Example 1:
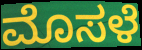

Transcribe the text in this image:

ಮೊಸಳೆ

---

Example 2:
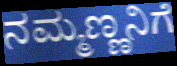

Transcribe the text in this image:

ನಮ್ಮಣ್ಣನಿಗೆ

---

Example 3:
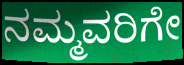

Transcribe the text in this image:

ನಮ್ಮವರಿಗೇ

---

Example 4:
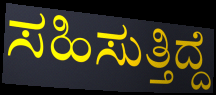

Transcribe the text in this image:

ಸಹಿಸುತ್ತಿದ್ದೆ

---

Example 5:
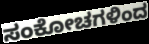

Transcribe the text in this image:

ಸಂಕೋಚಗಳಿಂದ